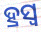
ହ୍ରସ୍ୱ